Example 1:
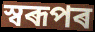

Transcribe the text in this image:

স্বৰূপৰ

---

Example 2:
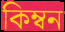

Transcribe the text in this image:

কিম্বন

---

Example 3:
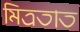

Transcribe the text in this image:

মিত্ৰতাত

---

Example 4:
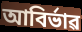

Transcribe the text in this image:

আবিৰ্ভাৱ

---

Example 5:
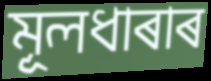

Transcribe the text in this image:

মূলধাৰাৰ